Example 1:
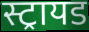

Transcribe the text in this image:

स्ट्रायड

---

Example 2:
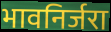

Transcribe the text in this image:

भावनिर्जरा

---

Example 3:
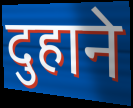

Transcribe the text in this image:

दुहाने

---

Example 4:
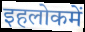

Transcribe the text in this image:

इहलोकमें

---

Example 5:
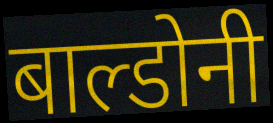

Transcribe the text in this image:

बाल्डोनी